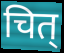
चित्